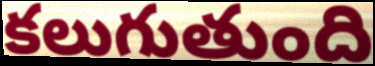
కలుగుతుంది